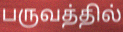
பருவத்தில்